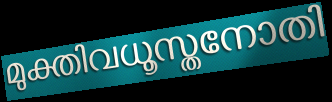
മുക്തിവധൂസ്തനോതി